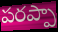
పరప్పా